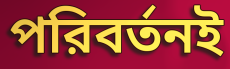
পরিবর্তনই